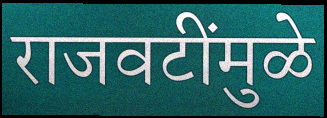
राजवटींमुळे